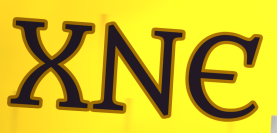
XNE